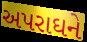
અપરાઘને